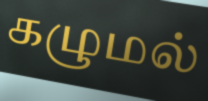
கழுமல்